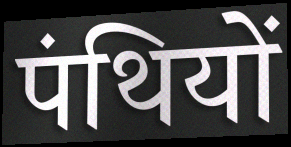
पंथियों